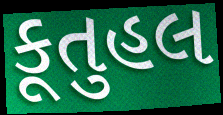
કૂતુહલ